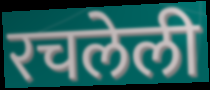
रचलेली